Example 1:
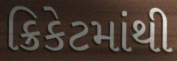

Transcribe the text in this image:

ક્રિકેટમાંથી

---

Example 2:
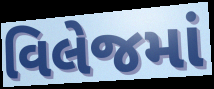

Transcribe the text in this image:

વિલેજમાં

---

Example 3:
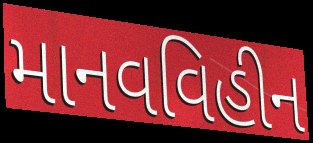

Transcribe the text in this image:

માનવવિહીન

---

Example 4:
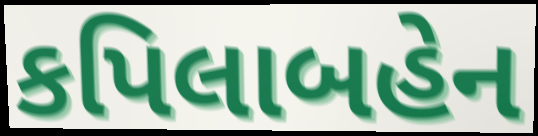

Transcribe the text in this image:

કપિલાબહેન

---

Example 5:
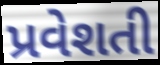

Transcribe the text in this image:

પ્રવેશતી